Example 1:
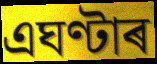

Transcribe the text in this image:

এঘণ্টাৰ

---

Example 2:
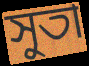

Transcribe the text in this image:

সুতা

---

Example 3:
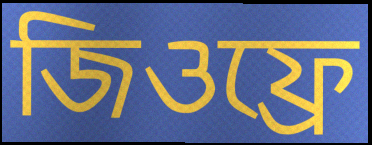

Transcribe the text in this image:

জিওফ্ৰে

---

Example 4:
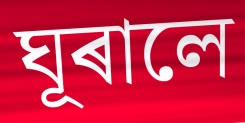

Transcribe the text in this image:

ঘূৰালে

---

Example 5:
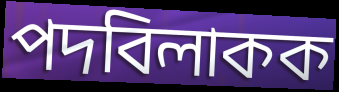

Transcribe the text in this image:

পদবিলাকক